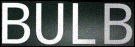
BULB